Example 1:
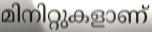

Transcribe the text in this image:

മിനിറ്റുകളാണ്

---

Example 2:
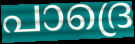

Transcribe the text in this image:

പാദ്രെ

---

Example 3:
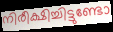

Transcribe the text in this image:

നിരീക്ഷിച്ചിട്ടുണ്ടോ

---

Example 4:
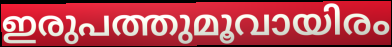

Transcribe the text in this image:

ഇരുപത്തുമൂവായിരം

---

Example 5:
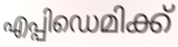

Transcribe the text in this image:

എപ്പിഡെമിക്ക്